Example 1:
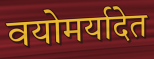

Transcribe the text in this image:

वयोमर्यादेत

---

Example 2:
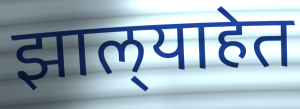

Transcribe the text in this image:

झाल्याहेत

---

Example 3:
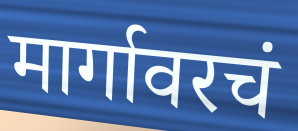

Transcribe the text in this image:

मार्गावरचं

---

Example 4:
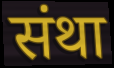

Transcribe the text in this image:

संथा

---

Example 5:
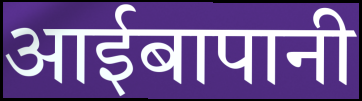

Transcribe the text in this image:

आईबापानी